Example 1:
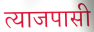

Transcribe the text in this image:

त्याजपासी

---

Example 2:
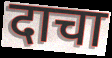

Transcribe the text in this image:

दाचा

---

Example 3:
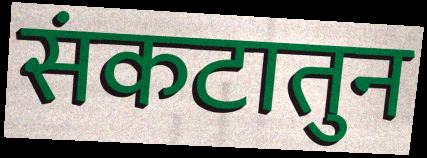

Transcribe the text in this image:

संकटातुन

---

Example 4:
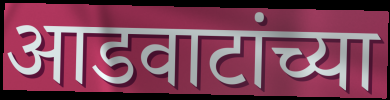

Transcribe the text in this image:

आडवाटांच्या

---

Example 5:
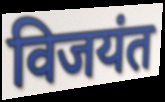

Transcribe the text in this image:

विजयंत